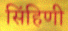
सिंहिणी